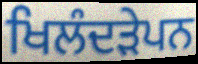
ਖਿਲੰਦੜੇਪਨ